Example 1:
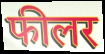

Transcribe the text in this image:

फीलर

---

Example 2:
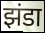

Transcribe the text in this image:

झंडा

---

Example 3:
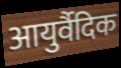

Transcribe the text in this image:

आयुर्वैदिक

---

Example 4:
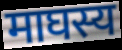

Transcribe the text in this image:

माघस्य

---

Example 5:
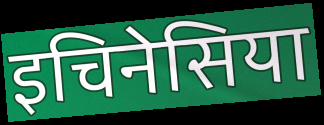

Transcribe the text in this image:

इचिनेसिया